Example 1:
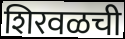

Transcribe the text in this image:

शिरवळची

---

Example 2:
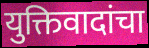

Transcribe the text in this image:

युक्तिवादांचा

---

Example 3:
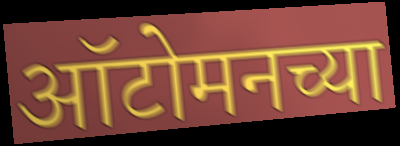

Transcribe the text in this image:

ऑटोमनच्या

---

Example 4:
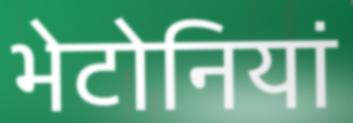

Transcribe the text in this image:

भेटोनियां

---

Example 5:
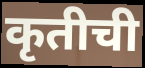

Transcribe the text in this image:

कृतीची